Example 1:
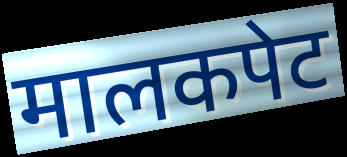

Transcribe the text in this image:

मालकपेट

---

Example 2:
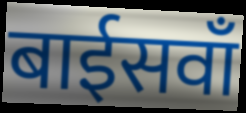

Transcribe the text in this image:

बाईसवाँ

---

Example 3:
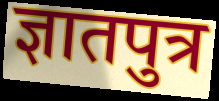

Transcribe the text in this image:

ज्ञातपुत्र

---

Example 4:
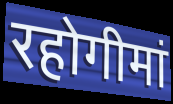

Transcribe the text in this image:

रहोगीमां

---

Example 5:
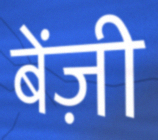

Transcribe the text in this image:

बेंज़ी